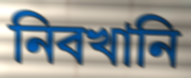
নিবখানি